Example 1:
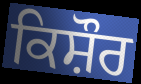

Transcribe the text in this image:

ਕਿਸ਼ੌਰ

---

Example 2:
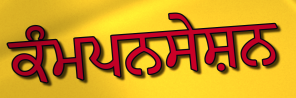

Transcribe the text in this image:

ਕੰਮਪਨਸੇਸ਼ਨ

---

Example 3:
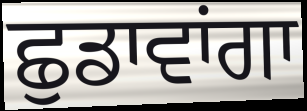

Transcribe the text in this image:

ਛੁਡਾਵਾਂਗਾ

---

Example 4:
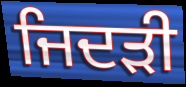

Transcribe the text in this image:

ਜਿਦੜੀ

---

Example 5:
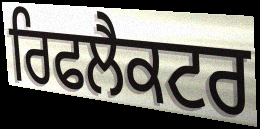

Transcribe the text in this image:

ਰਿਫਲੈਕਟਰ